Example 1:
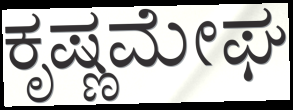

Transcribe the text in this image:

ಕೃಷ್ಣಮೇಘ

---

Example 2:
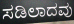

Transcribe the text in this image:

ಸಡಿಲಾದವು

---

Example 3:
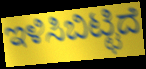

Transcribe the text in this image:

ಇಳಿಸಿಬಿಟ್ಟಿದೆ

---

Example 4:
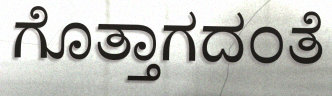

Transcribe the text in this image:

ಗೊತ್ತಾಗದಂತೆ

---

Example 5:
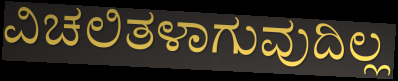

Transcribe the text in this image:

ವಿಚಲಿತಳಾಗುವುದಿಲ್ಲ